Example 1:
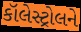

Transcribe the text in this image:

કૉલેસ્ટ્રોલને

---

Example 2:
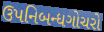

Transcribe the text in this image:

ઉપનિબન્ધગોચરો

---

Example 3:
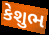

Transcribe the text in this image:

કેશુભ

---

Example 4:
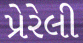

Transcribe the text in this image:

પ્રેરેલી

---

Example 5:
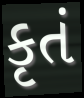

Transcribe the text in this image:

કૃતં